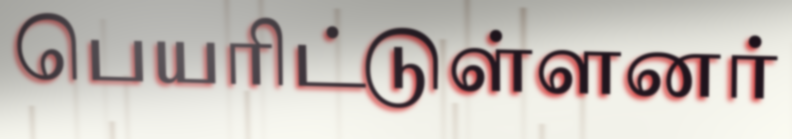
பெயரிட்டுள்ளனர்